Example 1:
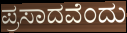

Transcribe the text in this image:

ಪ್ರಸಾದವೆಂದು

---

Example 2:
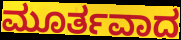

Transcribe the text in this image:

ಮೂರ್ತವಾದ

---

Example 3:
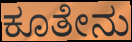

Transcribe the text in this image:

ಕೂತೇನು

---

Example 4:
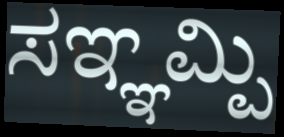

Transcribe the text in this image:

ಸಞ್ಞಮ್ಪಿ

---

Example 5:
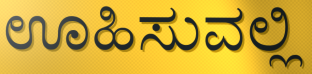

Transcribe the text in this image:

ಊಹಿಸುವಲ್ಲಿ